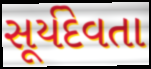
સૂર્યદેવતા